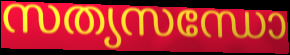
സത്യസന്ധോ